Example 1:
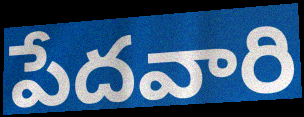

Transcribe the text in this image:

పేదవారి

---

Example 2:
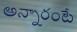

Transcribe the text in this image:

అన్నారంటే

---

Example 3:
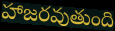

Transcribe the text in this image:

హాజరవుతుంది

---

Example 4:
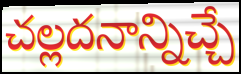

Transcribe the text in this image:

చల్లదనాన్నిచ్చే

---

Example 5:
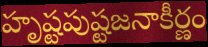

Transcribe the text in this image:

హృష్టపుష్టజనాకీర్ణం